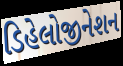
ડિહેલોજીનેશન